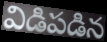
విడిపడిన